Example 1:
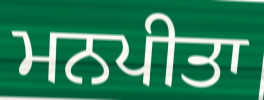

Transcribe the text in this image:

ਮਨਪੀਤਾ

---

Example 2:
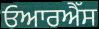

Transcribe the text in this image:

ਓਆਰਐੱਸ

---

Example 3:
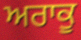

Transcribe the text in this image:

ਅਰਾਕੂ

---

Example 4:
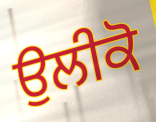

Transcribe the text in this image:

ਉਲੀਕੋ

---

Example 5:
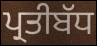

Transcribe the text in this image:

ਪ੍ਰਤੀਬੱਧ